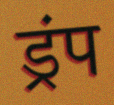
ड्रंप